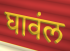
घावंल